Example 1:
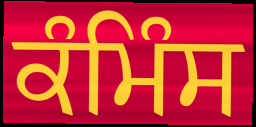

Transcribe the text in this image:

ਕੰਮਿੰਸ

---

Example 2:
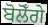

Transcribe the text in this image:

ਬੋਲੋਁਗੇ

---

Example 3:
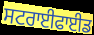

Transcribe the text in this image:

ਸਟਰਾਈਫਾਈਡ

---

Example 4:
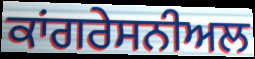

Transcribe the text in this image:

ਕਾਂਗਰੇਸਨੀਅਲ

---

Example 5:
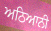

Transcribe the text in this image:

ਅਠਿਆਨੀ